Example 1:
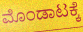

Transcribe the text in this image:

ಮೊಂಡಾಟಕ್ಕೆ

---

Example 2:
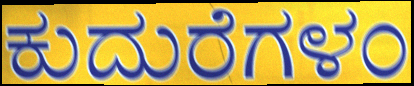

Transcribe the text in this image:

ಕುದುರೆಗಳಂ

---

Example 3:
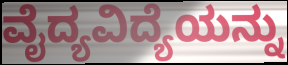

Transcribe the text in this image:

ವೈದ್ಯವಿದ್ಯೆಯನ್ನು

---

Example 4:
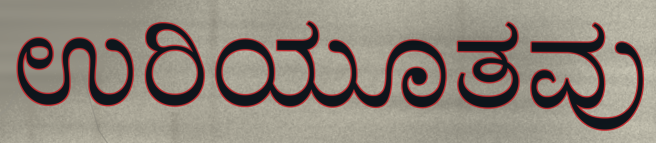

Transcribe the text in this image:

ಉರಿಯೂತವು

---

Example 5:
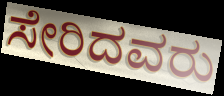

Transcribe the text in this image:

ಸೇರಿದವರು